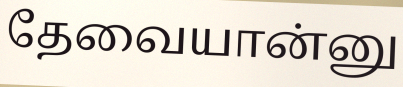
தேவையான்னு